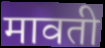
मावती